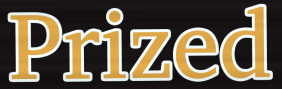
Prized